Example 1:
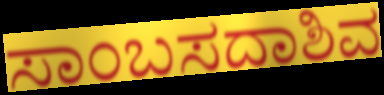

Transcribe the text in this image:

ಸಾಂಬಸದಾಶಿವ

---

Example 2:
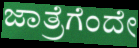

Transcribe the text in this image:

ಜಾತ್ರೆಗೆಂದೇ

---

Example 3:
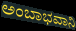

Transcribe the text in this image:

ಅಂಬಾಭವಾನಿ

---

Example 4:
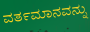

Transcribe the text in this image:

ವರ್ತಮಾನವನ್ನು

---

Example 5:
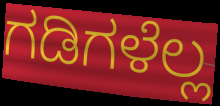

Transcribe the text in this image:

ಗಡಿಗಳೆಲ್ಲ